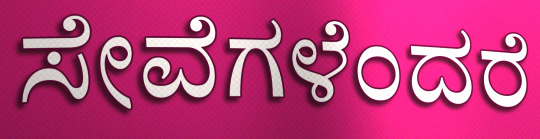
ಸೇವೆಗಳೆಂದರೆ